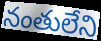
నంతులేని